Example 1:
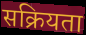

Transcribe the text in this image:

सक्रियता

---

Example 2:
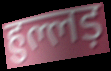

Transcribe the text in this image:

हुल्लड़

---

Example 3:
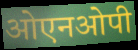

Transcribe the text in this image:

ओएनओपी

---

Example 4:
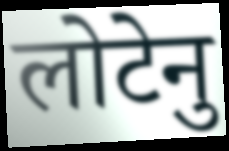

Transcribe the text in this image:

लोटेनु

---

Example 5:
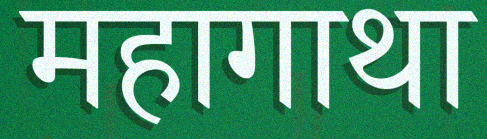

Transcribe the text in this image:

महागाथा